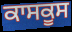
ਕਾਸਕੂਸ